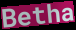
Betha